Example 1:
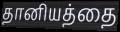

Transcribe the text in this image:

தானியத்தை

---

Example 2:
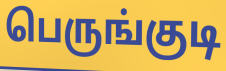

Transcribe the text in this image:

பெருங்குடி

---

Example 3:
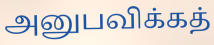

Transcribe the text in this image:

அனுபவிக்கத்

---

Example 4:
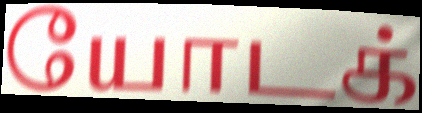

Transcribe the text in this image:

யோடக்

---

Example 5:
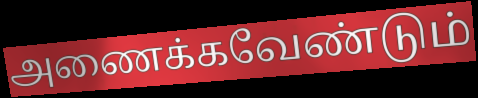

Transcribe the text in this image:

அணைக்கவேண்டும்